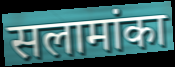
सलामांका